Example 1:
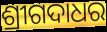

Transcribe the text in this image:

ଶ୍ରୀଗଦାଧର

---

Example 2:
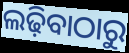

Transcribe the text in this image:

ଲଢ଼ିବାଠାରୁ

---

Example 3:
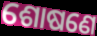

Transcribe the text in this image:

ଶୋଷଣେ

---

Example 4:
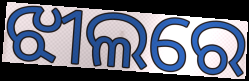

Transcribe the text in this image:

ଝୀଲରେ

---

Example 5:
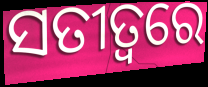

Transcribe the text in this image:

ସତୀତ୍ୱରେ